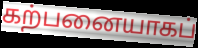
கற்பனையாகப்